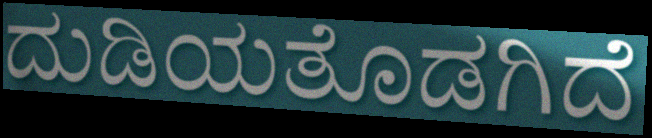
ದುಡಿಯತೊಡಗಿದೆ